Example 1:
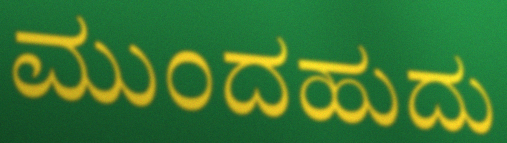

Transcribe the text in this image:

ಮುಂದಹುದು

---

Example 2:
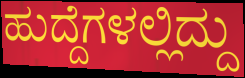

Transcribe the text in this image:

ಹುದ್ದೆಗಳಲ್ಲಿದ್ದು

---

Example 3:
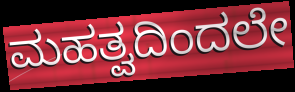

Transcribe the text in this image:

ಮಹತ್ವದಿಂದಲೇ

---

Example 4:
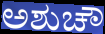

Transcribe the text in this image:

ಅಶುಚೌ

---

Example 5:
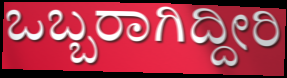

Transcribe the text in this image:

ಒಬ್ಬರಾಗಿದ್ದೀರಿ